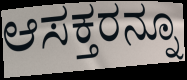
ಆಸಕ್ತರನ್ನೂ